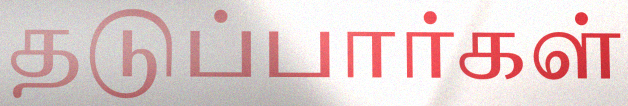
தடுப்பார்கள்